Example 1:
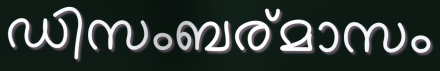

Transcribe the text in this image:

ഡിസംബര്മാസം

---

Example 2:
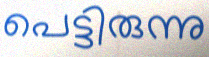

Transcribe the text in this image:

പെട്ടിരുന്നു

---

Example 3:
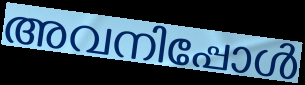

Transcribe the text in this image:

അവനിപ്പോൾ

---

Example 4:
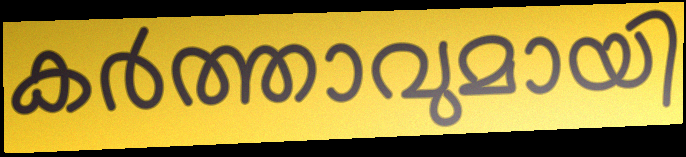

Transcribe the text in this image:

കർത്താവുമായി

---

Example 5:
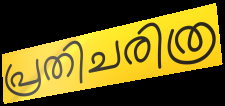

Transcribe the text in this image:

പ്രതിചരിത്ര